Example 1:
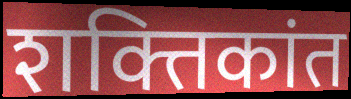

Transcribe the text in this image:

शक्तिकांत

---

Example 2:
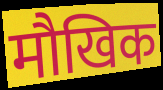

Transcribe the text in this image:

मौखिक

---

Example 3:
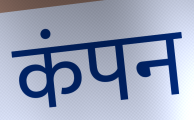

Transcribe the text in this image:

कंपन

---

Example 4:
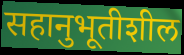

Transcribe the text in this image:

सहानुभूतीशील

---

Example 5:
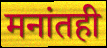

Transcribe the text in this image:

मनांतही